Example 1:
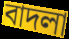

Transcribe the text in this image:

বাদলা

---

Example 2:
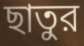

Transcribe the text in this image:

ছাতুর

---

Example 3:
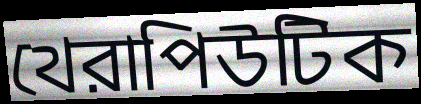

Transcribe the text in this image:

থেরাপিউটিক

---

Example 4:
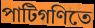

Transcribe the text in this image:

পাটিগণিতে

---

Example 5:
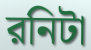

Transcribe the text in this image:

রনিটা